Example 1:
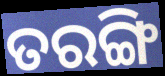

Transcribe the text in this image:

ତରଙ୍ଗି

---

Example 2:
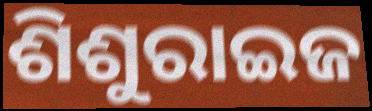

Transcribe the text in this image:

ଶିଶୁରାଇଜ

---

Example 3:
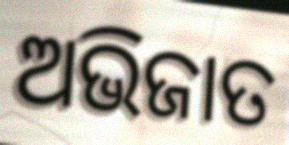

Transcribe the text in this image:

ଅଭିଜାତ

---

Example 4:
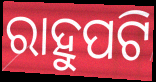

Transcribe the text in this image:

ରାହୁପଟି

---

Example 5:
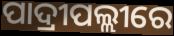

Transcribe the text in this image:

ପାଦ୍ରୀପଲ୍ଲୀରେ